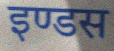
इण्डस